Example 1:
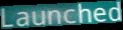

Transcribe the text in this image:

Launched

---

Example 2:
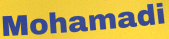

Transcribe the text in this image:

Mohamadi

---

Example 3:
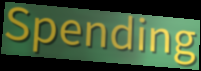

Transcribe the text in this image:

Spending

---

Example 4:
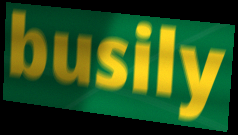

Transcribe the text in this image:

busily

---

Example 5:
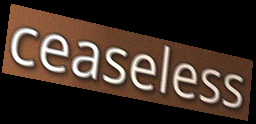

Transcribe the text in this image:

ceaseless